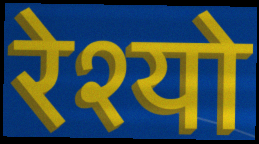
रेश्यो